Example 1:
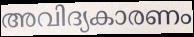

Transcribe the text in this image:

അവിദ്യകാരണം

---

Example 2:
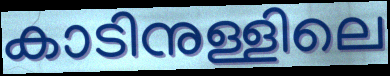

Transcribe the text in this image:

കാടിനുള്ളിലെ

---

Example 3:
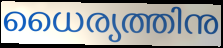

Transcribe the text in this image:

ധൈര്യത്തിനു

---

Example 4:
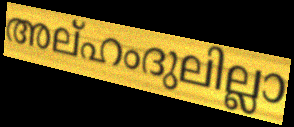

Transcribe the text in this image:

അല്ഹംദുലില്ലാ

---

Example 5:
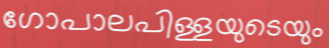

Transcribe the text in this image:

ഗോപാലപിള്ളയുടെയും